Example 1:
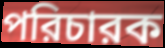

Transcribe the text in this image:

পরিচারক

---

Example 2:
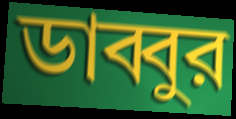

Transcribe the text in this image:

ডাব্বুর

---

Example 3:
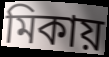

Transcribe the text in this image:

মিকায়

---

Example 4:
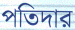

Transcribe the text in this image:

পতিদার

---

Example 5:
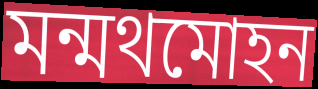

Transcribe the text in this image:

মন্মথমোহন